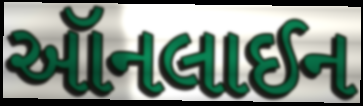
ઑનલાઈન